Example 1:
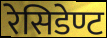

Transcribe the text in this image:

रेसिडेण्ट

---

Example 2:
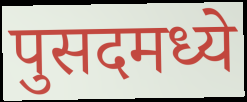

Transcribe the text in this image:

पुसदमध्ये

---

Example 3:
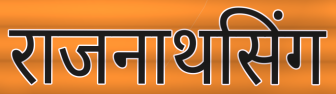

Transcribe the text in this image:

राजनाथसिंग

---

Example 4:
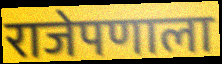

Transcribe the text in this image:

राजेपणाला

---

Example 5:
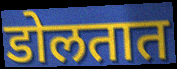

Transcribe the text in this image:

डोलतात